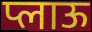
प्लाऊ